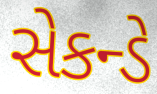
સેકન્ડે